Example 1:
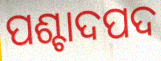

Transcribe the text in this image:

ପଶ୍ଚାଦପଦ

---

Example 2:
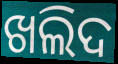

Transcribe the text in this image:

ଖଲିଦ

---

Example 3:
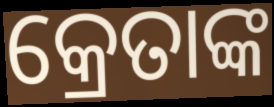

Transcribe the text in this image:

କ୍ରେତାଙ୍କ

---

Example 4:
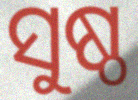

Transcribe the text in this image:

ସୁଷ୍ଠ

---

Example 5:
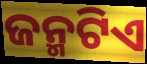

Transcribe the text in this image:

ଜନ୍ମଟିଏ